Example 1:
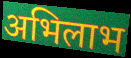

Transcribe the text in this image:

अभिलाभ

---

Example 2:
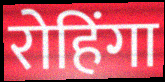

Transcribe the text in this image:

रोहिंगा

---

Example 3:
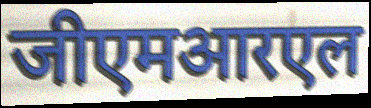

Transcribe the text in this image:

जीएमआरएल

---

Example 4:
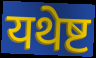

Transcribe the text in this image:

यथेष्ट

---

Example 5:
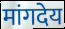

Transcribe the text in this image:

मांगदेय